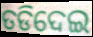
ତଡିଦେଇ